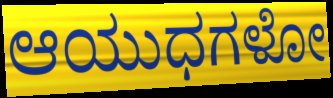
ಆಯುಧಗಳೋ